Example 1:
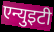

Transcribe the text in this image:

एन्युइटी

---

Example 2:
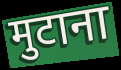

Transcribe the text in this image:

मुटाना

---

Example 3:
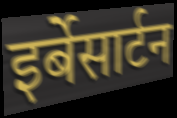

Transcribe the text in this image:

इर्बेसार्टन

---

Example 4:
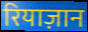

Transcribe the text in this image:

रियाज़ान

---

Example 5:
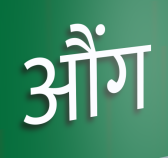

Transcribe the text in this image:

औंग